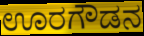
ಊರಗೌಡನ